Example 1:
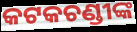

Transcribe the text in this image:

କଟକଚଣ୍ଡୀଙ୍କ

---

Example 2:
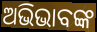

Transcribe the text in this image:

ଅଭିଭାବଙ୍କ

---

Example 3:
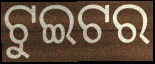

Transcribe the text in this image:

ଟୁଇଟର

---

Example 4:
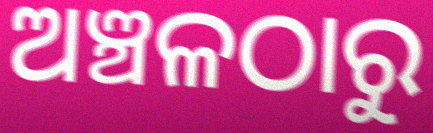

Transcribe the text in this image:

ଅଞ୍ଚଳଠାରୁ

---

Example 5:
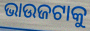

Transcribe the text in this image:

ଭାଉଜଟାକୁ